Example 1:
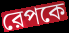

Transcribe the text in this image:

রেপকে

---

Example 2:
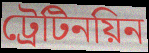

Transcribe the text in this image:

ট্রেটিনয়িন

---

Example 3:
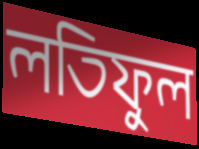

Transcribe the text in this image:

লতিফুল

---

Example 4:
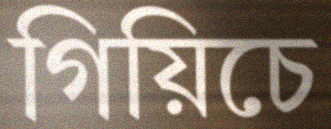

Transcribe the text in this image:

গিয়িচে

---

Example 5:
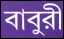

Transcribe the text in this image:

বাবুরী